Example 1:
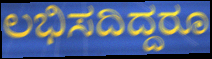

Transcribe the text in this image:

ಲಭಿಸದಿದ್ದರೂ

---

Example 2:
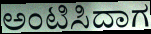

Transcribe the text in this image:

ಅಂಟಿಸಿದಾಗ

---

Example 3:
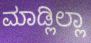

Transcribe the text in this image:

ಮಾಡ್ಲಿಲ್ಲಾ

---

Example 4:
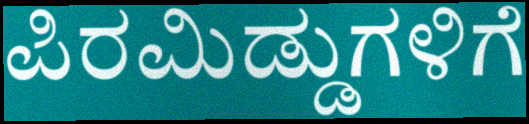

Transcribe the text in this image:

ಪಿರಮಿಡ್ಡುಗಳಿಗೆ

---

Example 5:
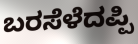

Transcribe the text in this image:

ಬರಸೆಳೆದಪ್ಪಿ